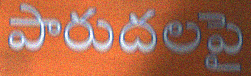
పారుదలపై